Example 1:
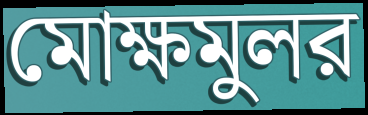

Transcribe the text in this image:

মোক্ষমুলর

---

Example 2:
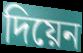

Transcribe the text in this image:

দিয়েন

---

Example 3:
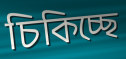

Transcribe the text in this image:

চিকিচ্ছে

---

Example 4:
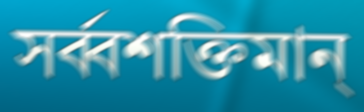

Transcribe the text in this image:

সর্ব্বশক্তিমান্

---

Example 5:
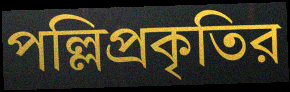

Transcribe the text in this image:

পল্লিপ্রকৃতির